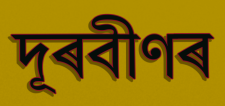
দূৰবীণৰ